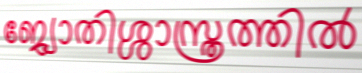
ജ്യോതിശ്ശാസ്ത്രത്തിൽ